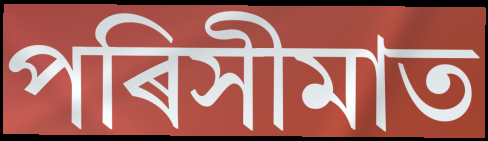
পৰিসীমাত